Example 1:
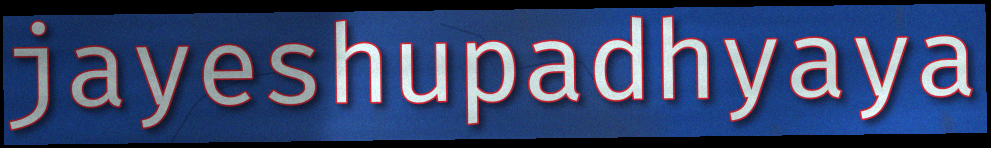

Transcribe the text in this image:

jayeshupadhyaya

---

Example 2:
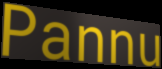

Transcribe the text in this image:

Pannu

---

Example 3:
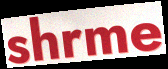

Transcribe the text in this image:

shrme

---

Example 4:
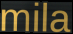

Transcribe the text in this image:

mila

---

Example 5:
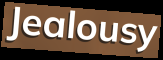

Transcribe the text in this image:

Jealousy